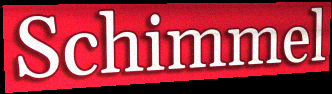
Schimmel